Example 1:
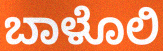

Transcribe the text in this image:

ಬಾಳೊಲಿ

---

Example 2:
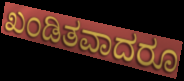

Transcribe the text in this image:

ಖಂಡಿತವಾದರೂ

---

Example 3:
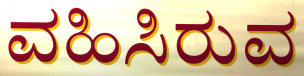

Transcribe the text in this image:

ವಹಿಸಿರುವ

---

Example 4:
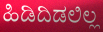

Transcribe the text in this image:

ಹಿಡಿದಿಡಲಿಲ್ಲ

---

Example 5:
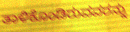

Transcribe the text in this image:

ತಾಳಿಕೊಂಡಿರುವವರನ್ನು